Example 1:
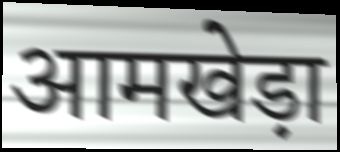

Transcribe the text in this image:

आमखेड़ा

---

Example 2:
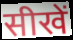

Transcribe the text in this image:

सीखें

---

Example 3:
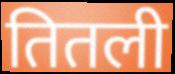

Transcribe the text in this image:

तितली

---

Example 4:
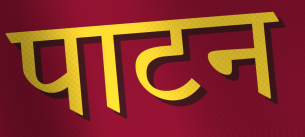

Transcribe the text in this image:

पाटन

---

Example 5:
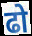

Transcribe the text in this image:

ढो